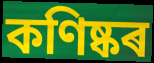
কণিষ্কৰ